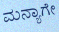
ಮನ್ಯಾಗೇ